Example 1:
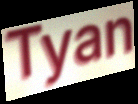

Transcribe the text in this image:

Tyan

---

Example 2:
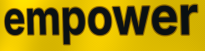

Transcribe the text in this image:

empower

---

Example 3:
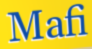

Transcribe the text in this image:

Mafi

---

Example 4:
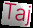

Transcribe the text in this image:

Taj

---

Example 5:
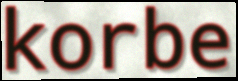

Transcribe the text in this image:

korbe